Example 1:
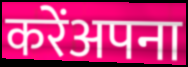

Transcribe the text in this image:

करेंअपना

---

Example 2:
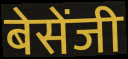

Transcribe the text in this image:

बेसेंजी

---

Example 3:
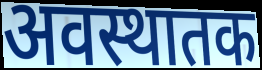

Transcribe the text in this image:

अवस्थातक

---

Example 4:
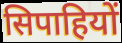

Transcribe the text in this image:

सिपाहियों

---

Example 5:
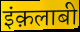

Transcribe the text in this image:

इंक़लाबी